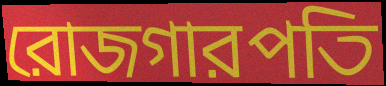
রোজগারপতি